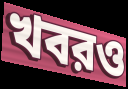
খবরও